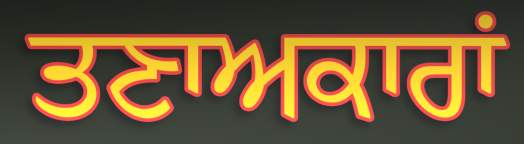
ਤਣਾਅਕਾਰਾਂ